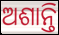
ଅଶାନ୍ତି